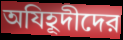
অযিহূদীদের